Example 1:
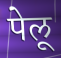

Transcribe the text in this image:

पेलू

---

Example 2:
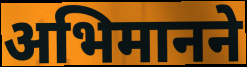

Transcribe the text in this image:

अभिमानने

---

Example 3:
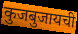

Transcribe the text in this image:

कुजबुजायची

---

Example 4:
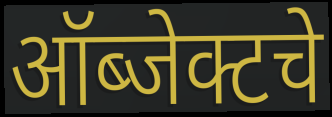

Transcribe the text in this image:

ऑब्जेक्टचे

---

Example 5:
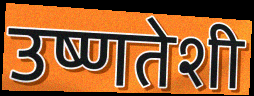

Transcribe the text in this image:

उष्णतेशी